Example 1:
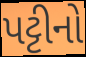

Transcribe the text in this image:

પટ્ટીનો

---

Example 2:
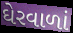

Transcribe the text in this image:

ઘેરવાળાં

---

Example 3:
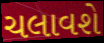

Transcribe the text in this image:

ચલાવશે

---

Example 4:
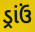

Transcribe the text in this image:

ડ્રાંઉં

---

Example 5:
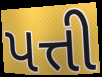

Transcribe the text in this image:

પત્તી